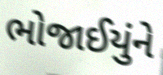
ભોજાઈયુંને